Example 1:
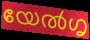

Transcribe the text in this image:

യേൽഗൃ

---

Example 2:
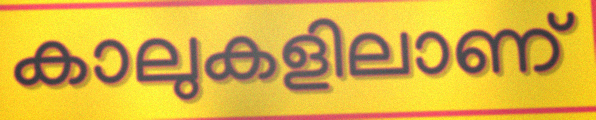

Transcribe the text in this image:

കാലുകളിലാണ്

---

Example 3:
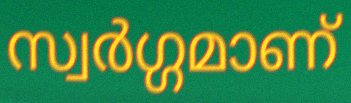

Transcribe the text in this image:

സ്വർഗ്ഗമാണ്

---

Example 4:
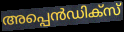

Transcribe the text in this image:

അപ്പെൻഡിക്സ്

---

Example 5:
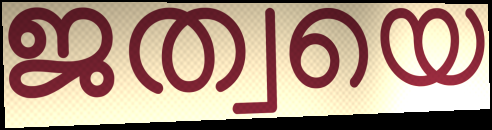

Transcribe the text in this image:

ജത്വയെ